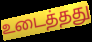
உடைத்தது